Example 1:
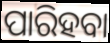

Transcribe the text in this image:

ପାରିହବା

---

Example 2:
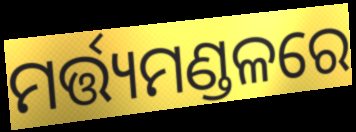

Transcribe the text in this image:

ମର୍ତ୍ତ୍ୟମଣ୍ଡଳରେ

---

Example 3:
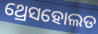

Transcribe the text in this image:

ଥ୍ରେସହୋଲଡ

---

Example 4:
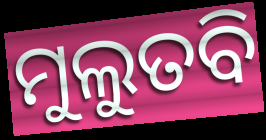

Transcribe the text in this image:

ମୁଲୁତବି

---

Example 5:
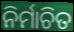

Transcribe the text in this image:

ନିର୍ମାଚିତ